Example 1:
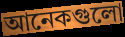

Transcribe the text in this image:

আনেকগুলো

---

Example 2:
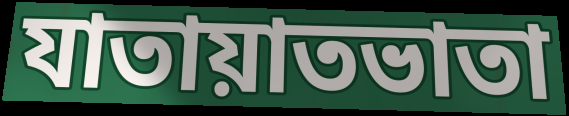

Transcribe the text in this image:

যাতায়াতভাতা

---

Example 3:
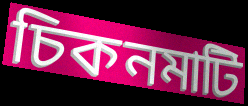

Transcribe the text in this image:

চিকনমাটি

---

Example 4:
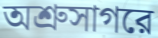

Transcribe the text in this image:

অশ্রুসাগরে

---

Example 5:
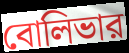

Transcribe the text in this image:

বোলিভার